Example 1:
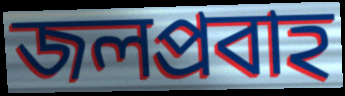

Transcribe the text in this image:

জলপ্ৰবাহ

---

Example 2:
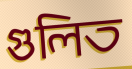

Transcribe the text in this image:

গুলিত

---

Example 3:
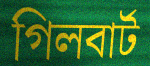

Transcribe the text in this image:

গিলবাৰ্ট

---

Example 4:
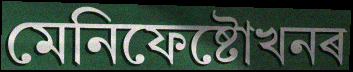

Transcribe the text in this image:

মেনিফেষ্টোখনৰ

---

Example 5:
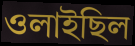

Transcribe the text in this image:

ওলাইছিল